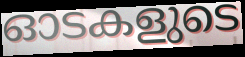
ഓടകളുടെ